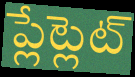
ప్లేట్లెట్